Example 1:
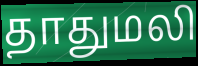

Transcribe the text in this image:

தாதுமலி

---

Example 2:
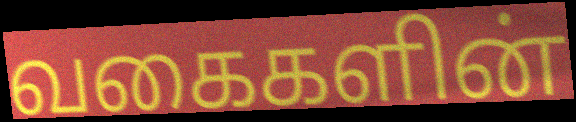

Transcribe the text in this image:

வகைகளின்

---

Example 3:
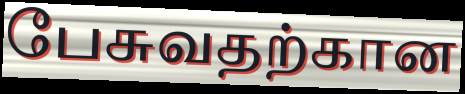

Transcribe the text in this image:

பேசுவதற்கான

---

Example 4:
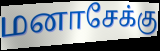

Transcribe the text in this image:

மனாசேக்கு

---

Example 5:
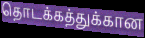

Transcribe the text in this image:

தொடக்கத்துக்கான